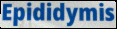
Epididymis